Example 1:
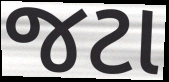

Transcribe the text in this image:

જટા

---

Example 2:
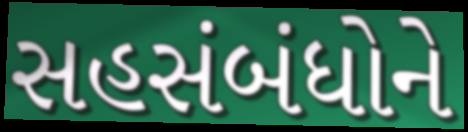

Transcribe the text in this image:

સહસંબંધોને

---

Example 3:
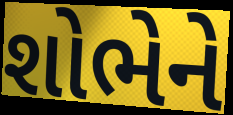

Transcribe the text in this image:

શોભેને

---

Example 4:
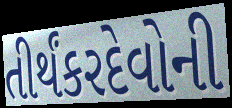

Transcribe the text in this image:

તીર્થંકરદેવોની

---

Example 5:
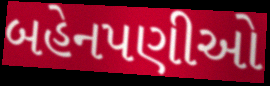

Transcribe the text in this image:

બહેનપણીઓ